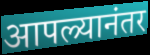
आपल्यानंतर